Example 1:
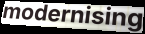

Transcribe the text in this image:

modernising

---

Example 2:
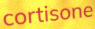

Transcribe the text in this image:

cortisone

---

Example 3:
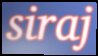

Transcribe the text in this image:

siraj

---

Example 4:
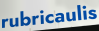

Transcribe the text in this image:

rubricaulis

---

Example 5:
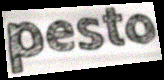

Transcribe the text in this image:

pesto